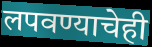
लपवण्याचेही